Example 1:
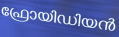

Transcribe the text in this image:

ഫ്രോയിഡിയൻ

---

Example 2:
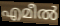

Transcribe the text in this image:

എമീൽ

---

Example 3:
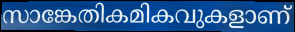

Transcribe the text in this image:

സാങ്കേതികമികവുകളാണ്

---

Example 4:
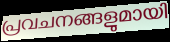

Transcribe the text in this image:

പ്രവചനങ്ങളുമായി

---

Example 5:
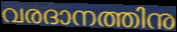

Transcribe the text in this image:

വരദാനത്തിനു